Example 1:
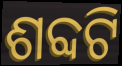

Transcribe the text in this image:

ଶବ୍ଦଟି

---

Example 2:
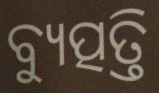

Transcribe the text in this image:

ବ୍ୟୁତ୍ପତ୍ତି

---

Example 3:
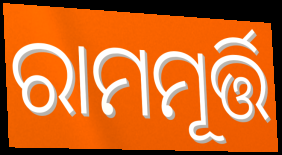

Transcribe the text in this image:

ରାମମୂର୍ତ୍ତି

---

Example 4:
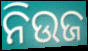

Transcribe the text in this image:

ନିଉଜ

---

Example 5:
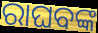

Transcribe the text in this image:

ରାଘବଙ୍କ